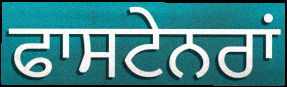
ਫਾਸਟੇਨਰਾਂ